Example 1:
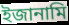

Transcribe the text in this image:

ইজানামি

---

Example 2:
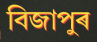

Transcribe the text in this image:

বিজাপুৰ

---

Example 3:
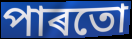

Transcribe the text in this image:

পাৰতো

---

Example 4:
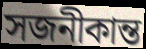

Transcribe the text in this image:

সজনীকান্ত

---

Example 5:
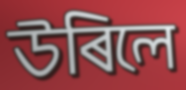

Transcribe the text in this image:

উৰিলে